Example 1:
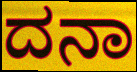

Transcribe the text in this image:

ದನಾ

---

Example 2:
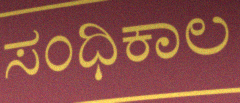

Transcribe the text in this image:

ಸಂಧಿಕಾಲ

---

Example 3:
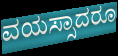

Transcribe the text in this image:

ವಯಸ್ಸಾದರೂ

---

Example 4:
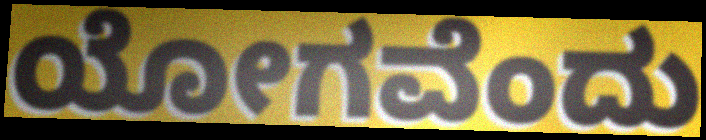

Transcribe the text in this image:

ಯೋಗವೆಂದು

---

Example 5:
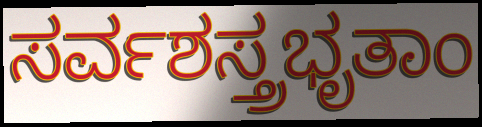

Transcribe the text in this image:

ಸರ್ವಶಸ್ತ್ರಭೃತಾಂ